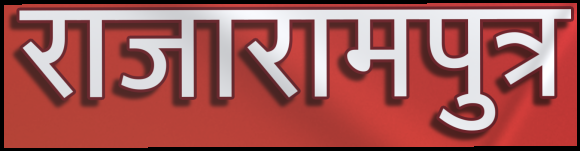
राजारामपुत्र